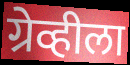
ग्रेव्हीला